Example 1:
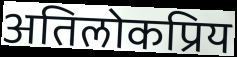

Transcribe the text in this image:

अतिलोकप्रिय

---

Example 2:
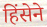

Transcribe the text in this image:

हिंसेने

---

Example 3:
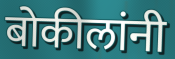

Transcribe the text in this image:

बोकीलांनी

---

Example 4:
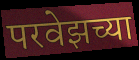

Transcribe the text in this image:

परवेझच्या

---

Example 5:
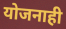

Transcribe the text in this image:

योजनाही